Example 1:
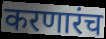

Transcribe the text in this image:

करणारंच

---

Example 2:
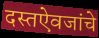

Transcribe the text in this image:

दस्तऐवजांचे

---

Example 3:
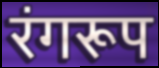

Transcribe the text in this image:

रंगरूप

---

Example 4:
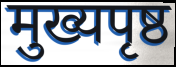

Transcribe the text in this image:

मुख्यपृष्ठ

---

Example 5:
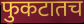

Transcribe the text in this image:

फुकटातच